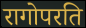
रागोपरति